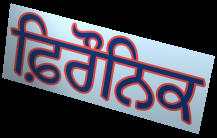
ਫ਼ਿਰੌਨਿਕ